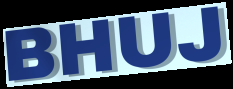
BHUJ